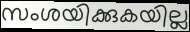
സംശയിക്കുകയില്ല